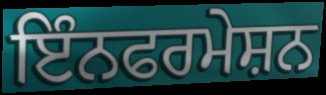
ਇੰਨਫਰਮੇਸ਼ਨ